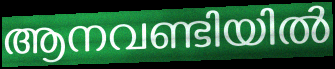
ആനവണ്ടിയിൽ